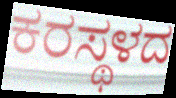
ಕರಸ್ಥಳದ